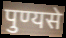
पुण्यसे